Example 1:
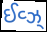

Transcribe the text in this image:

ઈવ્ઝ્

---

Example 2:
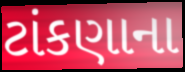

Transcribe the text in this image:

ટાંકણાના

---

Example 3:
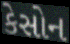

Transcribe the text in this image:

કેસોન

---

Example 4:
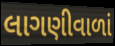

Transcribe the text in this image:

લાગણીવાળાં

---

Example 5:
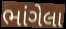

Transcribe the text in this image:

ભાંગેલા